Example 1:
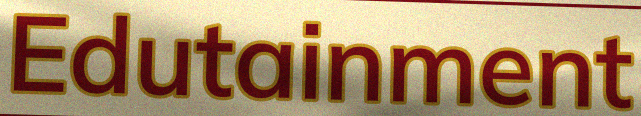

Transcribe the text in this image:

Edutainment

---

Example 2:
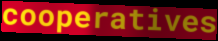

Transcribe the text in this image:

cooperatives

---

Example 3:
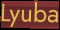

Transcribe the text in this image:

Lyuba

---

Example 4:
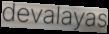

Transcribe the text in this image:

devalayas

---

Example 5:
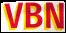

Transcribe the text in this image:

VBN